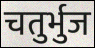
चतुर्भुज